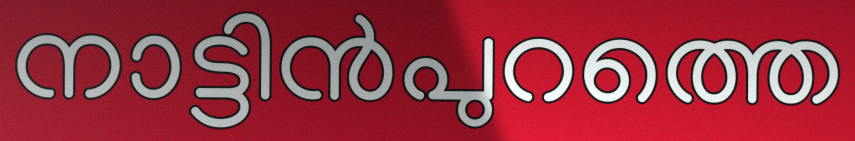
നാട്ടിൻപുറത്തെ